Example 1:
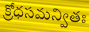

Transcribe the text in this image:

క్రోధసమన్వితః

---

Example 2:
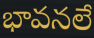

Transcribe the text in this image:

భావనలే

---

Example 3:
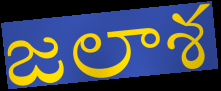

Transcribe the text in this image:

జలాశ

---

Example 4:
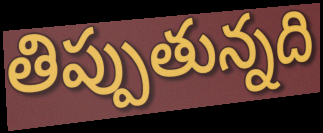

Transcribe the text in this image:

తిప్పుతున్నది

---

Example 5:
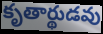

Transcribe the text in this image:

కృతార్థుడవు